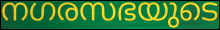
നഗരസഭയുടെ